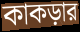
কাকড়ার